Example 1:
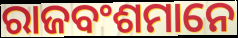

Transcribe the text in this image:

ରାଜବଂଶମାନେ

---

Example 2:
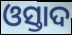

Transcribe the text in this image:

ଓସ୍ତାଦ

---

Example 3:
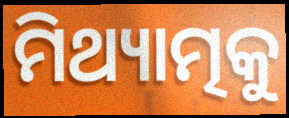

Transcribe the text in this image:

ମିଥ୍ୟାତ୍ମକୁ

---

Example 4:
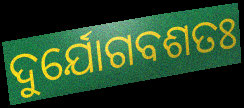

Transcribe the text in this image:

ଦୁର୍ଯୋଗବଶତଃ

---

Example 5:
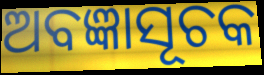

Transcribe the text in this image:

ଅବଜ୍ଞାସୂଚକ